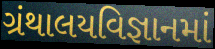
ગ્રંથાલયવિજ્ઞાનમાં